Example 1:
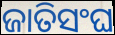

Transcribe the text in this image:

ଜାତିସଂଘ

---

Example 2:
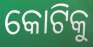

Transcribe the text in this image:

କୋଟିକୁ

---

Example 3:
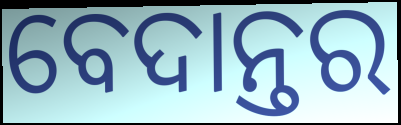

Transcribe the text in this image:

ବେଦାନ୍ତର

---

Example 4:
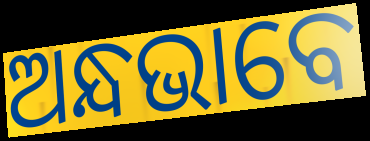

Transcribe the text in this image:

ଅନ୍ଧଭାବେ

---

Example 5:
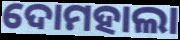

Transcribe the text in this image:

ଦୋମହାଲା